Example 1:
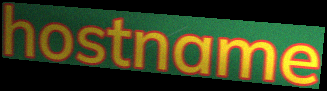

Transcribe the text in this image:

hostname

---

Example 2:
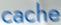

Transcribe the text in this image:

cache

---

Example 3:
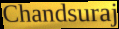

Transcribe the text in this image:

Chandsuraj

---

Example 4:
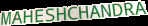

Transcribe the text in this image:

MAHESHCHANDRA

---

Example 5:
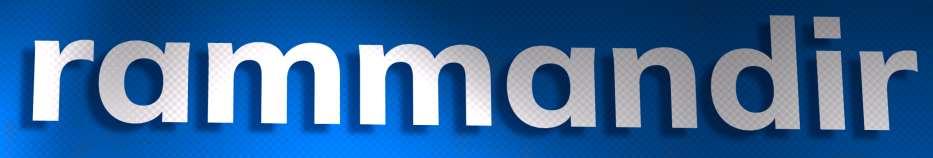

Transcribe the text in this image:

rammandir